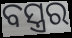
ବସ୍ତ୍ରର